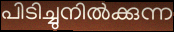
പിടിച്ചുനിൽക്കുന്ന